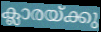
ക്ലാരയ്ക്കു